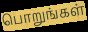
பொறுங்கள்